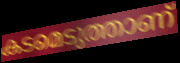
കടമെടുത്താണ്